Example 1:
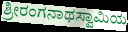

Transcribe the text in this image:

ಶ್ರೀರಂಗನಾಥಸ್ವಾಮಿಯ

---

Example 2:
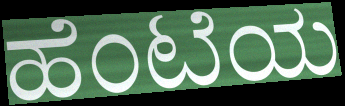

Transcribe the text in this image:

ಹೆಂಟೆಯ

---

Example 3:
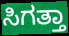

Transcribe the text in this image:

ಸಿಗತ್ತಾ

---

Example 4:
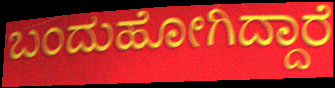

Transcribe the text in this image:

ಬಂದುಹೋಗಿದ್ದಾರೆ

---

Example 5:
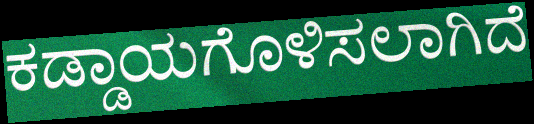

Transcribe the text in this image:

ಕಡ್ಡಾಯಗೊಳಿಸಲಾಗಿದೆ